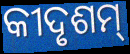
କୀଦୃଶମ୍